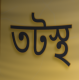
তটস্থ